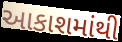
આકાશમાંથી